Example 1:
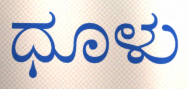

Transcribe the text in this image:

ಧೂಳು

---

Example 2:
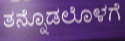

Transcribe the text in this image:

ತನ್ನೊಡಲೊಳಗೆ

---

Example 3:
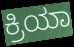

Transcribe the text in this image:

ಕ್ರಿಯಾ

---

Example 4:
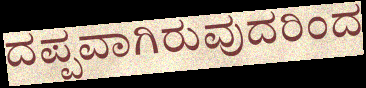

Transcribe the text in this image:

ದಪ್ಪವಾಗಿರುವುದರಿಂದ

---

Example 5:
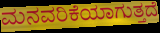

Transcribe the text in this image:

ಮನವರಿಕೆಯಾಗುತ್ತದೆ